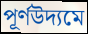
পূর্ণউদ্যমে